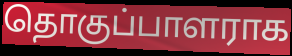
தொகுப்பாளராக